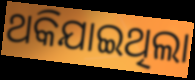
ଥକିଯାଇଥିଲା